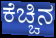
ಕೆಚ್ಚಿನ